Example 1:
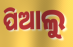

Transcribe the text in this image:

ପିଆଲୁ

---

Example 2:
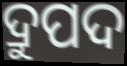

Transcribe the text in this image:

ଦ୍ରୁପଦ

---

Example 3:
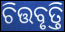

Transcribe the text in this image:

ଚିତ୍ତବୃତ୍ତି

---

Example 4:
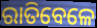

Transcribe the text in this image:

ରାତିବେଳେ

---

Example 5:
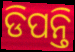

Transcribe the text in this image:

ଡିପନ୍ତି